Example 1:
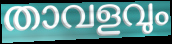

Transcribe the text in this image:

താവളവും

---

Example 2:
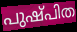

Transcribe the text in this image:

പുഷ്പിത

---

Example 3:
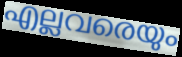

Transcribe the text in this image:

എല്ലവരെയും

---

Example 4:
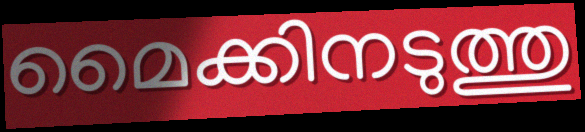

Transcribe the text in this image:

മൈക്കിനടുത്തു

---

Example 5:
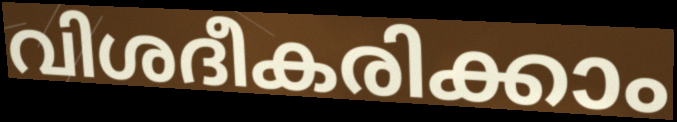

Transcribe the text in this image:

വിശദീകരിക്കാം